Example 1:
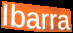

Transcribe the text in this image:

Ibarra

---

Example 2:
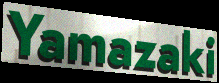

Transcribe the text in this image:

Yamazaki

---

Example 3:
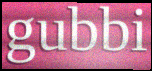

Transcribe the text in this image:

gubbi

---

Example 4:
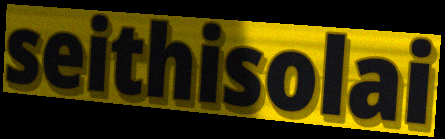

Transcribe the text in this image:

seithisolai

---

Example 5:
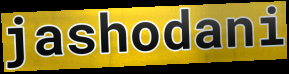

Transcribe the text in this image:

jashodani